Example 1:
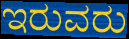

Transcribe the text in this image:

ಇರುವರು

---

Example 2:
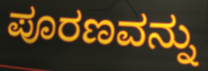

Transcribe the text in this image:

ಪೂರಣವನ್ನು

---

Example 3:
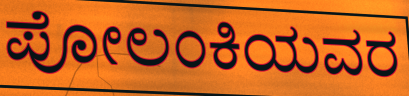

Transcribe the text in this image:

ಪೋಲಂಕಿಯವರ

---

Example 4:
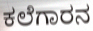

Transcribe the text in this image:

ಕಲೆಗಾರನ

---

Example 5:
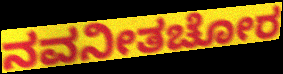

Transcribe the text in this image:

ನವನೀತಚೋರ